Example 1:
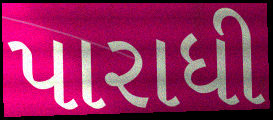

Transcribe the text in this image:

પારાધી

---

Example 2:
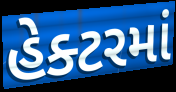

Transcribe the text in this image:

હેક્ટરમાં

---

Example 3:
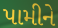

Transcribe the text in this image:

પામીને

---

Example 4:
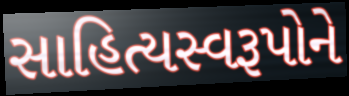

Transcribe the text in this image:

સાહિત્યસ્વરૂપોને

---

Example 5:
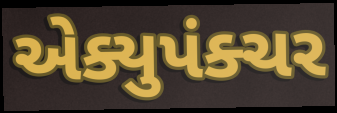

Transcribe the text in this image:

એક્યુપંક્ચર